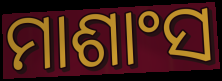
ମାଶାଂସ